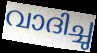
വാദിച്ചു